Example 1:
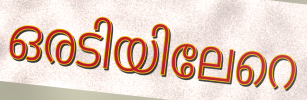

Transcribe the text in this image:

ഒരടിയിലേറെ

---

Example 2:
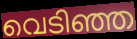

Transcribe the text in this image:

വെടിഞ്ഞ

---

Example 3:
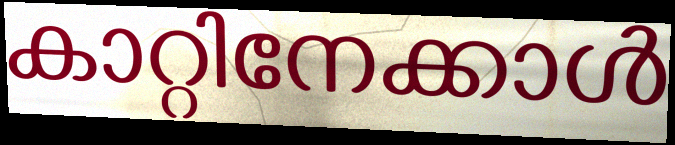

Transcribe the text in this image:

കാറ്റിനേക്കാൾ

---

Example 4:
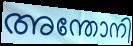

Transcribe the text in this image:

അന്തോനി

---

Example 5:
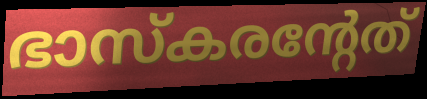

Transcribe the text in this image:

ഭാസ്കരന്റേത്